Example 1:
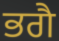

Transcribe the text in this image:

ਭਗੈ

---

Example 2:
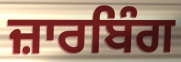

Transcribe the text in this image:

ਜ਼ਾਰਬਿੰਗ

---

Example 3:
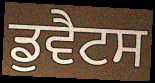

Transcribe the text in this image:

ਡੁਵੈਟਸ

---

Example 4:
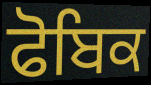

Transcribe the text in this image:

ਫੋਬਿਕ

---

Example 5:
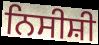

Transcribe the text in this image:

ਨਿਸੀਸ਼ੀ